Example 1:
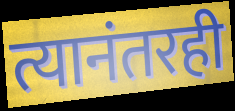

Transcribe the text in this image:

त्यानंतरही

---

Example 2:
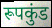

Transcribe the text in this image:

रूपकुंड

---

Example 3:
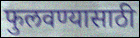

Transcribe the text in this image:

फुलवण्यासाठी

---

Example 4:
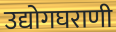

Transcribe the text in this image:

उद्योगघराणी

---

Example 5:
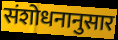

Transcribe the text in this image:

संशोधनानुसार